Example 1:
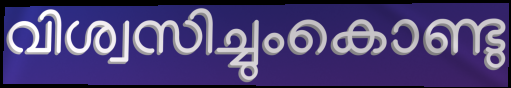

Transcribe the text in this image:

വിശ്വസിച്ചുംകൊണ്ടു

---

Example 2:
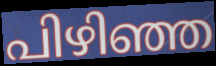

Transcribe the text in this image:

പിഴിഞ്ഞ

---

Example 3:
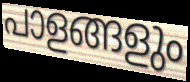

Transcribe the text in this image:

പാളങ്ങളും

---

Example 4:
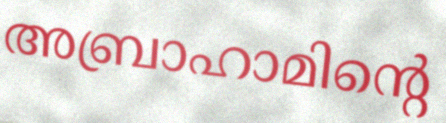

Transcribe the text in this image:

അബ്രാഹാമിന്റെ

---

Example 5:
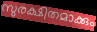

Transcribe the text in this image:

സുരക്ഷിതമാക്കും